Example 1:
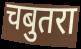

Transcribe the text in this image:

चबुतरा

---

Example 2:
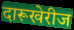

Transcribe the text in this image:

दारूखेरीज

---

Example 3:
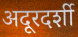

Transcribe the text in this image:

अदूरदर्शी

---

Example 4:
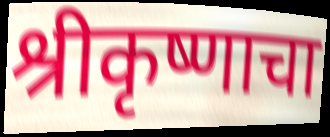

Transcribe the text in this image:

श्रीकृष्णाचा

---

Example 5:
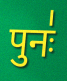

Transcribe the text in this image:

पुनः॑